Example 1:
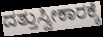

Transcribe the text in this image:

ದತ್ತುಸ್ವೀಕಾರಕ್ಕೆ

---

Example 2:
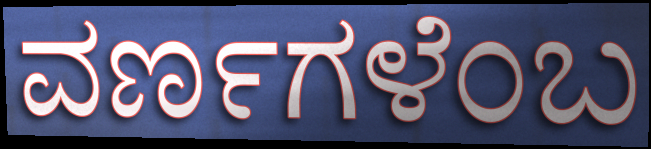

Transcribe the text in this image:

ವರ್ಣಗಳೆಂಬ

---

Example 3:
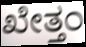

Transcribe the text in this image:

ಖೇತ್ತಂ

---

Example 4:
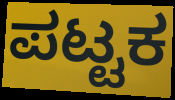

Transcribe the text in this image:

ಪಟ್ಟಕ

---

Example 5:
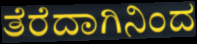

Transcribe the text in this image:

ತೆರೆದಾಗಿನಿಂದ